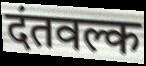
दंतवल्क